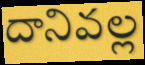
దానివల్ల